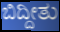
ಬಿದ್ದೀತು